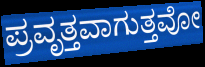
ಪ್ರವೃತ್ತವಾಗುತ್ತವೋ